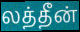
லத்தீன்